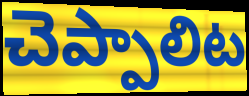
చెప్పాలిట